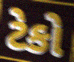
ટેકો